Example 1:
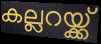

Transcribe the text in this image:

കല്ലറയ്ക്ക്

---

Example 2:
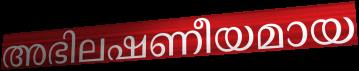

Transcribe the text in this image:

അഭിലഷണീയമായ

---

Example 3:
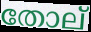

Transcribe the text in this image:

തോല്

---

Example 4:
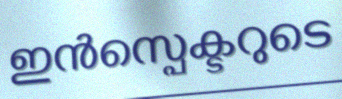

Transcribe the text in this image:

ഇൻസ്പെക്ടറുടെ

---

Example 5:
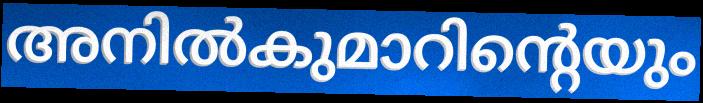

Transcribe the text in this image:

അനിൽകുമാറിന്റെയും